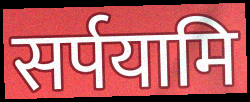
सर्पयामि